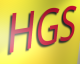
HGS